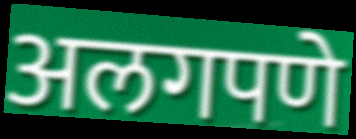
अलगपणे